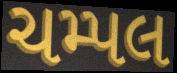
ચમ્પલ